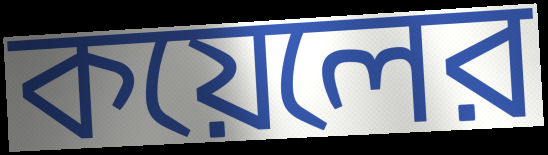
কয়েলের